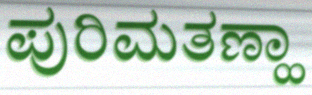
ಪುರಿಮತಣ್ಹಾ